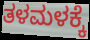
ತಳಮಳಕ್ಕೆ